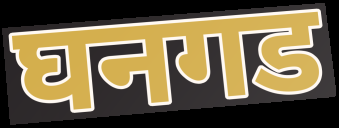
घनगड